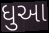
ધુઆ